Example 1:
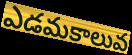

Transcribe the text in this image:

ఎడమకాలువ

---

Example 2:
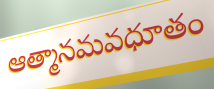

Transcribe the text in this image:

ఆత్మానమవధూతం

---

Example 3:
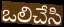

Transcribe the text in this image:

ఒలిచేసి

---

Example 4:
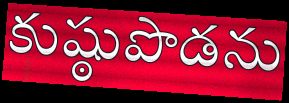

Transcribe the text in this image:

కుష్ఠుపొడను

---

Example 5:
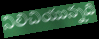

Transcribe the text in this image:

నిలిచియున్నది